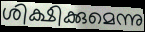
ശിക്ഷിക്കുമെന്നു